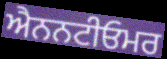
ਐਨਨਟੀਓਮਰ